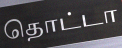
தொட்டா